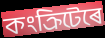
কংক্ৰিটেৰে